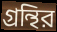
গ্রন্থির